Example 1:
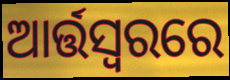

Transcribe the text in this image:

ଆର୍ତ୍ତସ୍ଵରରେ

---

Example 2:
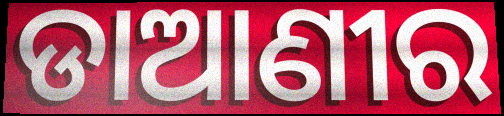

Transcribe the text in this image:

ଡାଆଣୀର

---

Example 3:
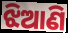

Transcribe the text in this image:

ଝିଆଣି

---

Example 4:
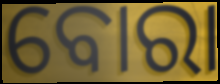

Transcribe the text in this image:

ବୋରା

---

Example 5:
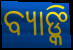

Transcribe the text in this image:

ବ୍ୟାଙ୍କି